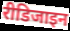
रीडिजाइन